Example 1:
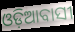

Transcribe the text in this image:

ଓଡ଼ିଆବାସୀ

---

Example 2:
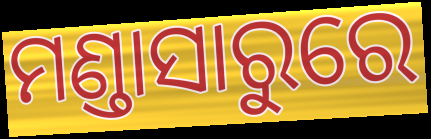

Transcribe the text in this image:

ମଣ୍ଡାସାରୁରେ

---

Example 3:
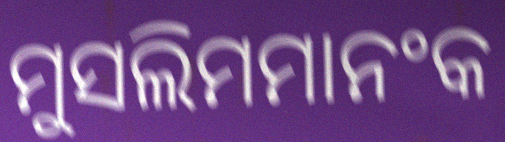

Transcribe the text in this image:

ମୁସଲିମମାନଂକ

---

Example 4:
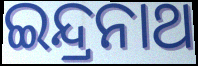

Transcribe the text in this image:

ଇନ୍ଦ୍ରନାଥ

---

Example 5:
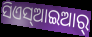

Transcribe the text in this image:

ସିଏସ୍ଆଇଆର୍